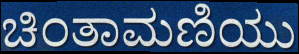
ಚಿಂತಾಮಣಿಯು